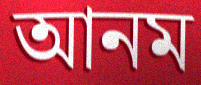
আনম